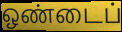
ஒண்டைப்